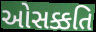
ઓસક્કતિ